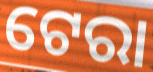
ଟେରା